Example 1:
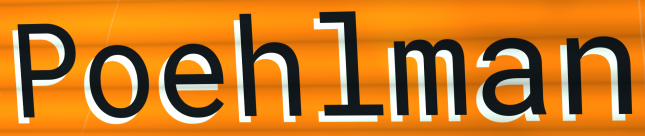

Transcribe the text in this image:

Poehlman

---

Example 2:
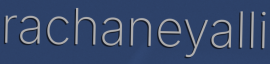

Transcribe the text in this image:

rachaneyalli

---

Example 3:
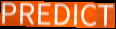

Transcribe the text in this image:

PREDICT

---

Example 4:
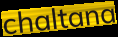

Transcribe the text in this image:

chaltana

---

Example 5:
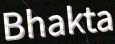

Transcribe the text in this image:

Bhakta